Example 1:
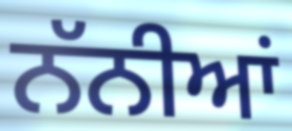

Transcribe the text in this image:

ਨੱਨੀਆਂ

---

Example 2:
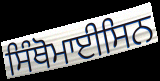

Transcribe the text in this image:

ਸਿੰਥੋਮਾਈਸਿਨ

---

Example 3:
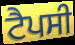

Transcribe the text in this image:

ਟੈਪਸੀ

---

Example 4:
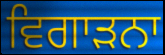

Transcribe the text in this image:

ਵਿਗਾੜਨਾ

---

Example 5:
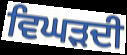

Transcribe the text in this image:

ਵਿਘੜਦੀ